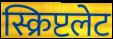
स्क्रिप्टलेट